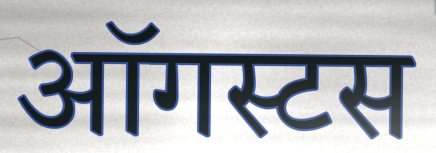
ऑगस्टस